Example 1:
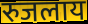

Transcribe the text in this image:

रुजलाय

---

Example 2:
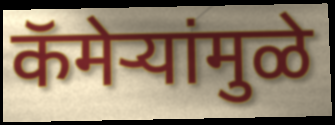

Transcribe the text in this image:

कॅमेऱ्यांमुळे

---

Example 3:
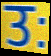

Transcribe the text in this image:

उः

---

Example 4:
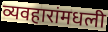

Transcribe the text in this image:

व्यवहारांमधली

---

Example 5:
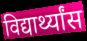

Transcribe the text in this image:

विद्यार्थ्यांस